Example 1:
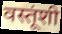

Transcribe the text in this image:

वस्तूंशी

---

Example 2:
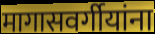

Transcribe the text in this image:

मागासवर्गीयांना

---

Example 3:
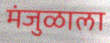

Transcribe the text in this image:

मंजुळाला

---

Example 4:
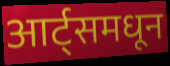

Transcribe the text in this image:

आर्ट्समधून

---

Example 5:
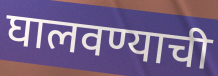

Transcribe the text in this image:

घालवण्याची